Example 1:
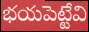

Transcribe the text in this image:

భయపెట్టేవి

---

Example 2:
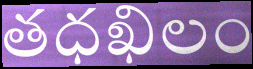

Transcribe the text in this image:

తధఖిలం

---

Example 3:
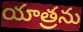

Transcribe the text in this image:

యాత్రను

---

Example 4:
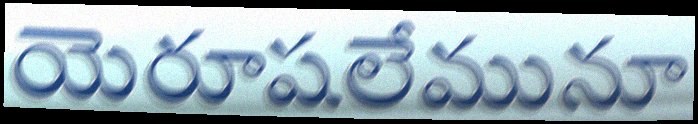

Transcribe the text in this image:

యెరూషలేమునూ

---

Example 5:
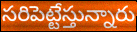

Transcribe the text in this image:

సరిపెట్టేస్తున్నారు